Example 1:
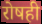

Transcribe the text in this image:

रोषही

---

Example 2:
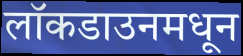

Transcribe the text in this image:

लॉकडाउनमधून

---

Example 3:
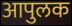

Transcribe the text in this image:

आपुलक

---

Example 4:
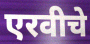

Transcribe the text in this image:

एरवीचे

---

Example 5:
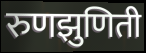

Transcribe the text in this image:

रुणझुणिती